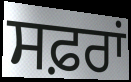
ਸਫ਼ਰਾਂ